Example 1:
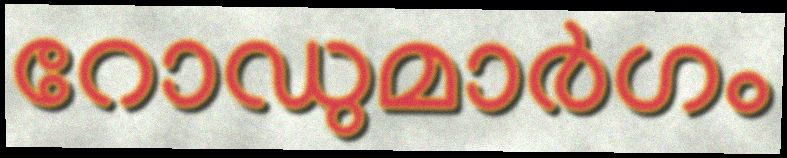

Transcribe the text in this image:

റോഡുമാർഗം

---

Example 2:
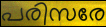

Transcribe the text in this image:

പരിസരേ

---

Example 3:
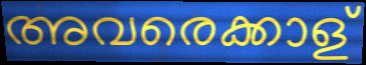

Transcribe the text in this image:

അവരെക്കാള്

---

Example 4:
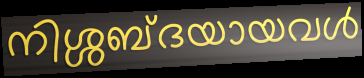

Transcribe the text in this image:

നിശ്ശബ്ദയായവൾ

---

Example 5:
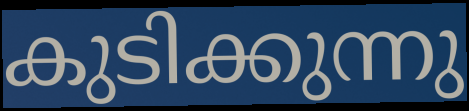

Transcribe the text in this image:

കുടിക്കുന്നു